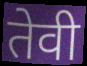
तेवी